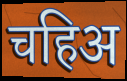
चहिअ